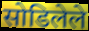
सोडिलेले